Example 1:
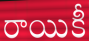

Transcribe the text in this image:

రాయికీ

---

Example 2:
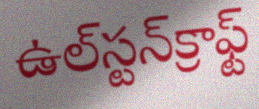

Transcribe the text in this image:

ఉల్‌స్టన్‌క్రాఫ్ట్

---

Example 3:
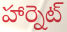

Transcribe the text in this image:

హార్నెట్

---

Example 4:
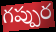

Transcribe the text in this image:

గప్పుర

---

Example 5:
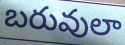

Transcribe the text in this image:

బరువులా